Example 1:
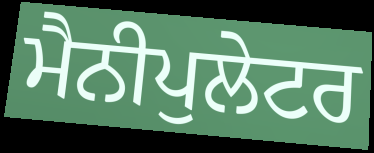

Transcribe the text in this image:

ਮੈਨੀਪੁਲੇਟਰ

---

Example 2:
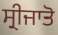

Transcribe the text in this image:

ਸ੍ਰੀਜਾਤੋ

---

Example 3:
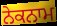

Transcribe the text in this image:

ਨੇਕਨਾਮ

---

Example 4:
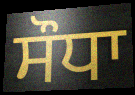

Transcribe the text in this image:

ਸੌਧਾ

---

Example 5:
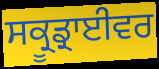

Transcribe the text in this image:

ਸਕ੍ਰੂਡ੍ਰਾਈਵਰ